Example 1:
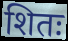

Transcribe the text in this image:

शितः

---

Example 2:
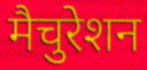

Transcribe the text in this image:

मैचुरेशन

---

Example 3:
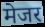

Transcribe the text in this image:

मेजर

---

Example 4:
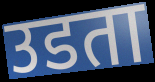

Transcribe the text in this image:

उडता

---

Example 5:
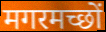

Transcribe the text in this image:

मगरमच्छों